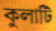
কুলাটি